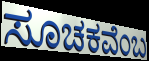
ಸೂಚಕವೆಂಬ